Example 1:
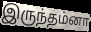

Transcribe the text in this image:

இருந்தம்னா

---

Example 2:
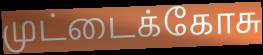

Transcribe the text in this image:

முட்டைக்கோசு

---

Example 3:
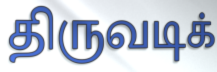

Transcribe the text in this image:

திருவடிக்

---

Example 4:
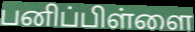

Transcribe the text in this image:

பனிப்பிள்ளை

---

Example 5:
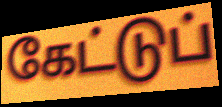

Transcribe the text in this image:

கேட்டுப்